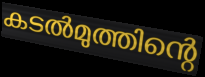
കടൽമുത്തിന്റെ